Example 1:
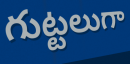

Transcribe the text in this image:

గుట్టలుగా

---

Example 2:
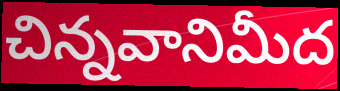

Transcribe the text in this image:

చిన్నవానిమీద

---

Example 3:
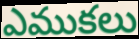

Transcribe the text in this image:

ఎముకలు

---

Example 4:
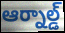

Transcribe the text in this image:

ఆర్నాల్డ్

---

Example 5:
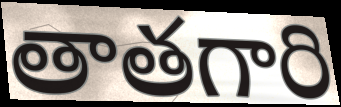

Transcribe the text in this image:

తాతగారి